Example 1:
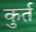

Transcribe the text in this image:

कुर्त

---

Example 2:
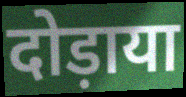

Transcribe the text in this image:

दोड़ाया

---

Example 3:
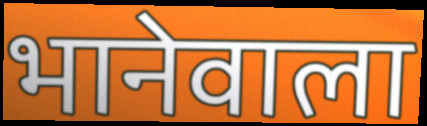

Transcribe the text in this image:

भानेवाला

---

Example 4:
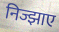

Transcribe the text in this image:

निज्झाए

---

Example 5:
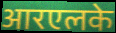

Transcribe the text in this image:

आरएलके